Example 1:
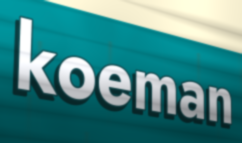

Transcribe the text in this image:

koeman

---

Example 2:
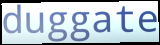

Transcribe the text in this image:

duggate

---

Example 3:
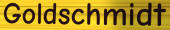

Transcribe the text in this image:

Goldschmidt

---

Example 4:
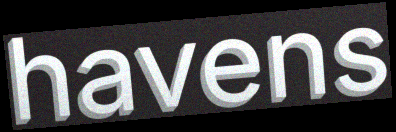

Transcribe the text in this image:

havens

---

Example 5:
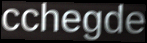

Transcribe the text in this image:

cchegde